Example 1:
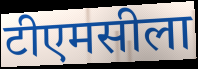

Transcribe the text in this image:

टीएमसीला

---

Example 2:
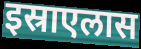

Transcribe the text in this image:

इस्राएलास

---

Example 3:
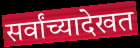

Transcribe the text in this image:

सर्वांच्यादेखत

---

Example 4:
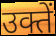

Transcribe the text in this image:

उक्तें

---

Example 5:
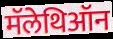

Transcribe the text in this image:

मॅलेथिऑन